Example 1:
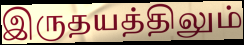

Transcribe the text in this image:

இருதயத்திலும்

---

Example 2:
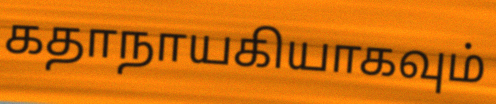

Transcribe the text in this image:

கதாநாயகியாகவும்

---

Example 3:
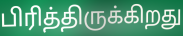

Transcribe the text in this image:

பிரித்திருக்கிறது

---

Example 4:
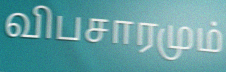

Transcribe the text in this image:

விபசாரமும்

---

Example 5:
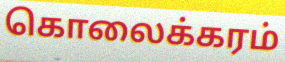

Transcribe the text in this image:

கொலைக்கரம்